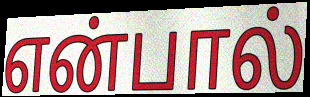
என்பால்